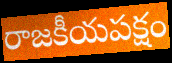
రాజకీయపక్షం